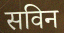
सविन